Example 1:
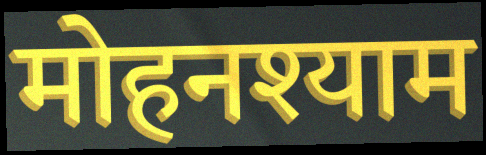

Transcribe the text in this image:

मोहनश्याम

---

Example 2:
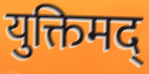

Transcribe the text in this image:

युक्तिमद्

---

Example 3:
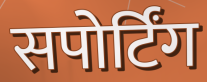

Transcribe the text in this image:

सपोर्टिंग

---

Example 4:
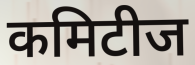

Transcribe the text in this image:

कमिटीज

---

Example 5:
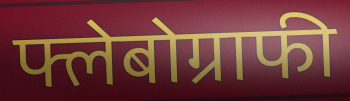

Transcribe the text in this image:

फ्लेबोग्राफी